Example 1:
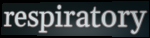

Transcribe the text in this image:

respiratory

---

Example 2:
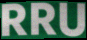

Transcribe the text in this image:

RRU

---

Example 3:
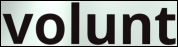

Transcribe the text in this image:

volunt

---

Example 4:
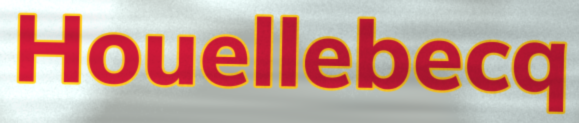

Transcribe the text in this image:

Houellebecq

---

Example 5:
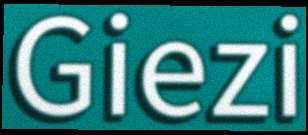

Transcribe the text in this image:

Giezi